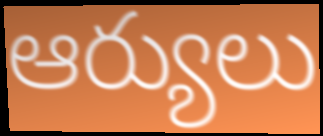
ఆర్యులు